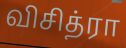
விசித்ரா